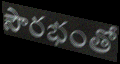
సౌరభంతో